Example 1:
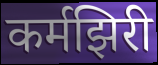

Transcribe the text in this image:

कर्मझिरी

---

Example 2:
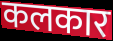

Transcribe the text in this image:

कलकार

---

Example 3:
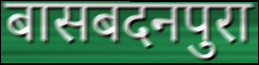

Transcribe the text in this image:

बासबदनपुरा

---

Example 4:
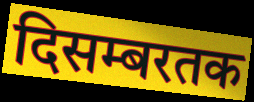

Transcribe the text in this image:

दिसम्बरतक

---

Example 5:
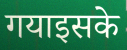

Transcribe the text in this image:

गयाइसके